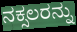
ನಕ್ಸಲರನ್ನು